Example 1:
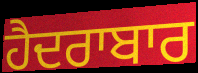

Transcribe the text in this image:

ਹੈਦਰਾਬਾਰ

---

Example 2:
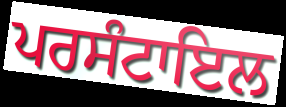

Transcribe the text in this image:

ਪਰਸੰਟਾਇਲ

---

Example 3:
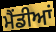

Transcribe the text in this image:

ਮੈਂਡੀਆਂ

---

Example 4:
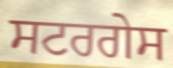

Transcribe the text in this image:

ਸਟਰਗੇਸ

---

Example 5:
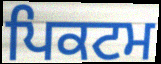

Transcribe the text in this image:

ਪਿਕਟਮ